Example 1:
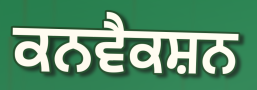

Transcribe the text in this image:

ਕਨਵੈਕਸ਼ਨ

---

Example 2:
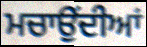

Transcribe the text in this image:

ਮਚਾਉਂਦੀਆਂ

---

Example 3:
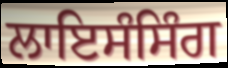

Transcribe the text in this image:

ਲਾਇਸੰਸਿੰਗ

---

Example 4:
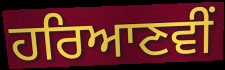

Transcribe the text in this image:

ਹਰਿਆਣਵੀਂ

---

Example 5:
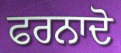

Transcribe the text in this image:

ਫਰਨਾਦੋ